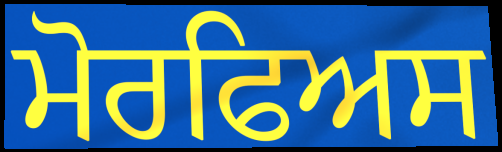
ਮੋਰਫਿਅਸ